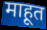
माहूत